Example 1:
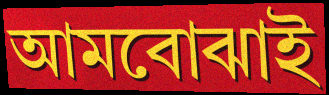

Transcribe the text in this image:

আমবোঝাই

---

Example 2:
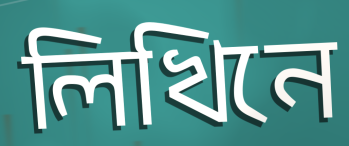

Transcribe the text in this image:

লিখিনে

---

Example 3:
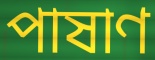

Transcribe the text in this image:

পাষাণ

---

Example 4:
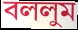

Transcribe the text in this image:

বললুম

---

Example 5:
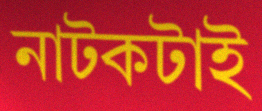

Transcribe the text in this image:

নাটকটাই